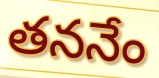
తననేం